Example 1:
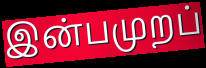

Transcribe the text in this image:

இன்பமுறப்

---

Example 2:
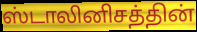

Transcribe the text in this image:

ஸ்டாலினிசத்தின்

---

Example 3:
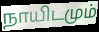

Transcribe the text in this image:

நாயிடமும்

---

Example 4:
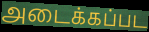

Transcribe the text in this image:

அடைக்கப்பட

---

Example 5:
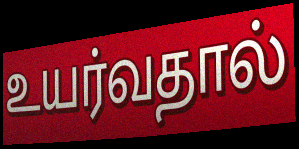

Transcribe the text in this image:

உயர்வதால்